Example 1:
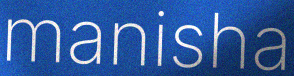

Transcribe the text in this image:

manisha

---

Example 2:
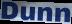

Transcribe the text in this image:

Dunn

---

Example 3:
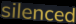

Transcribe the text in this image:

silenced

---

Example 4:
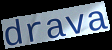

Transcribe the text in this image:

drava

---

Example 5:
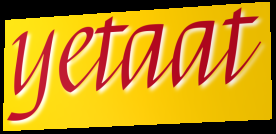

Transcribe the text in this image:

yetaat